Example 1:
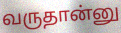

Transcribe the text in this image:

வருதான்னு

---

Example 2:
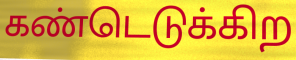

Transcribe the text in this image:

கண்டெடுக்கிற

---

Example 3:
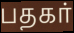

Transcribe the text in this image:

பதகர்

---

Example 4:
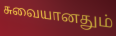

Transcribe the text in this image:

சுவையானதும்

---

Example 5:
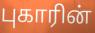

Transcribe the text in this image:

புகாரின்